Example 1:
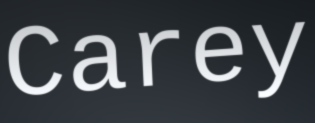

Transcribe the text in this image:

Carey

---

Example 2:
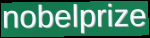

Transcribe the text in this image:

nobelprize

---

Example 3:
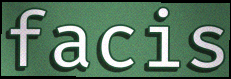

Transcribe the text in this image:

facis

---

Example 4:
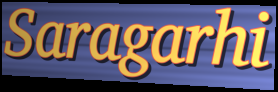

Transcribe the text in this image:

Saragarhi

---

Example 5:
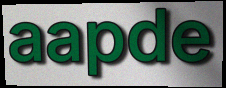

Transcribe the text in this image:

aapde